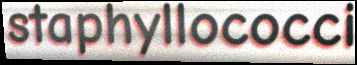
staphyllococci